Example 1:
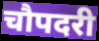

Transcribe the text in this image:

चौपदरी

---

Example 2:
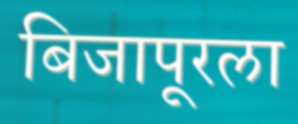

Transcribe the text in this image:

बिजापूरला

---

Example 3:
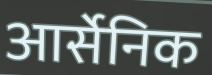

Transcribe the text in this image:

आर्सेनिक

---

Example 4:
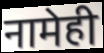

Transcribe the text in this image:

नामेही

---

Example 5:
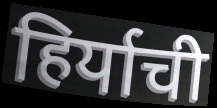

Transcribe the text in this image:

हिर्याची